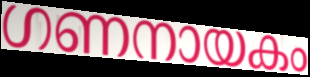
ഗണനായകം